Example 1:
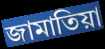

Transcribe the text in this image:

জামাতিয়া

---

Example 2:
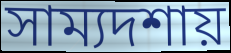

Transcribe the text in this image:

সাম্যদশায়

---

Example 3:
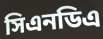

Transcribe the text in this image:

সিএনডিএ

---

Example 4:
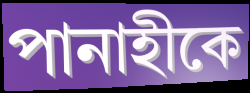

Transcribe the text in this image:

পানাহীকে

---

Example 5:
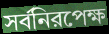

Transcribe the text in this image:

সর্বনিরপেক্ষ